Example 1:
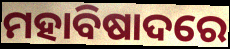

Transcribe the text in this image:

ମହାବିଷାଦରେ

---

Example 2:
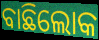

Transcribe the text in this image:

ବାଛିଲୋକ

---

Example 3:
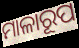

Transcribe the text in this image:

ମାଳାରୂପ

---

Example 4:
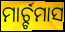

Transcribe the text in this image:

ମାର୍ଚ୍ଚମାସ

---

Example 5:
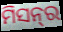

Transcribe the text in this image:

ମିସନ୍‍ର